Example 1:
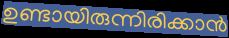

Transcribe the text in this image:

ഉണ്ടായിരുന്നിരിക്കാൻ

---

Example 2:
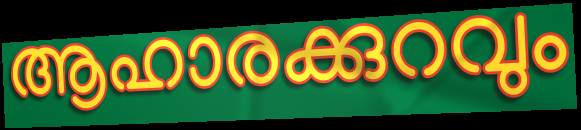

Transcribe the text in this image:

ആഹാരക്കുറവും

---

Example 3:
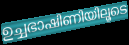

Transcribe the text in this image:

ഉച്ചഭാഷിണിയിലൂടെ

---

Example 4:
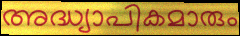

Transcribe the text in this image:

അദ്ധ്യാപികമാരും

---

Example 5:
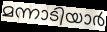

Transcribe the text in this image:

മന്നാടിയാർ